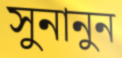
সুনানুন